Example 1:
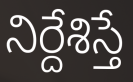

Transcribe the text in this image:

నిర్దేశిస్తే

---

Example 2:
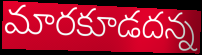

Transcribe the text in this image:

మారకూడదన్న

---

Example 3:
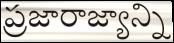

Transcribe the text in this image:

ప్రజారాజ్యాన్ని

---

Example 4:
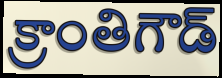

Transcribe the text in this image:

క్రాంతిగౌడ్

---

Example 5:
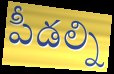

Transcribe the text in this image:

పీడల్ని